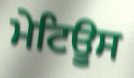
ਮੇਟਿਊਸ